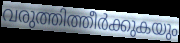
വരുത്തിത്തീർക്കുകയും